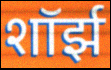
शॉर्झ